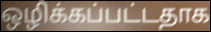
ஒழிக்கப்பட்டதாக